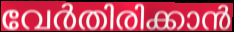
വേർതിരിക്കാൻ